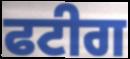
ਫਟੀਗ